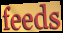
feeds